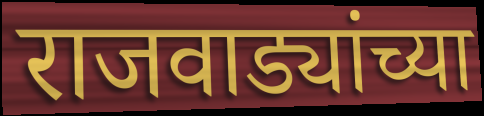
राजवाड्यांच्या